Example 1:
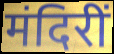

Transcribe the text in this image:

मंदिरीं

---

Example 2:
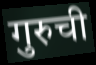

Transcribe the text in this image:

गुरुची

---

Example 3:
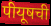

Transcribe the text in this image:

पीयूषची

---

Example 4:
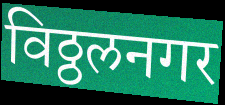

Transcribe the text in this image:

विठ्ठलनगर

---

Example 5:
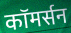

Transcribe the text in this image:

कॉमर्सन